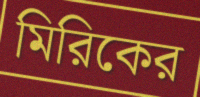
মিরিকের